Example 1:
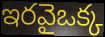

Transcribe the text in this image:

ఇరవైఒక్క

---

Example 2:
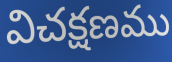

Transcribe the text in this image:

విచక్షణము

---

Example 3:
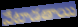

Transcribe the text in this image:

వేటాడతాయి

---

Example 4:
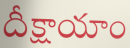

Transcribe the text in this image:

దీక్షాయాం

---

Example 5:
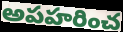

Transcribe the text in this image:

అపహరించ